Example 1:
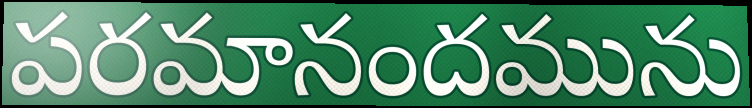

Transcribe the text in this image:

పరమానందమును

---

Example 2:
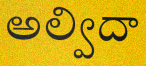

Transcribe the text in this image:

అల్విదా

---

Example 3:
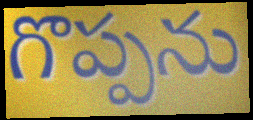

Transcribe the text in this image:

గొప్పను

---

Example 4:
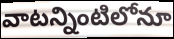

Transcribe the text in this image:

వాటన్నింటిలోనూ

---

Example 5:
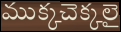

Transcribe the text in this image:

ముక్కచెక్కలై